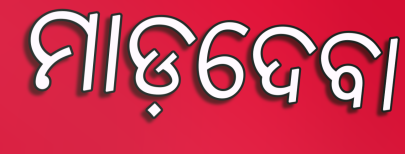
ମାଡ଼ଦେବା